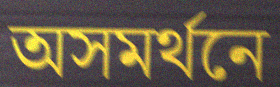
অসমর্থনে